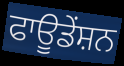
ਫਾਊਡੇਂਸ਼ਨ